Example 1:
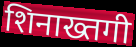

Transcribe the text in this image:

शिनाख्तगी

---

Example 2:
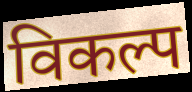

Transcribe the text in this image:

विकल्प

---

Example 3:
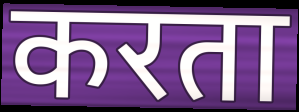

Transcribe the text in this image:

करता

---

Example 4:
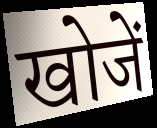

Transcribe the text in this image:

खोजें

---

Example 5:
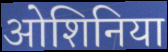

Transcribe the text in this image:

ओशिनिया